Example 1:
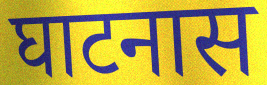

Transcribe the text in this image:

घाटनास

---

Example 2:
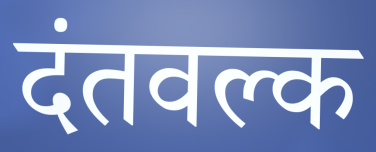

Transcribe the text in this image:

दंतवल्क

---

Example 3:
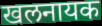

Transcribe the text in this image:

खलनायक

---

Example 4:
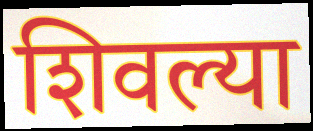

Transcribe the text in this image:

शिवल्या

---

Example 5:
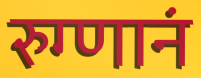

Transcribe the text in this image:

रुग्णानं